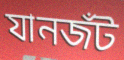
যানজঁট